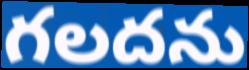
గలదను